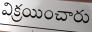
విక్రయించారు